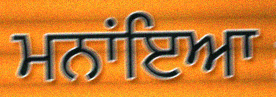
ਮਨਾਂਇਆ